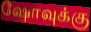
ஷோவுக்கு